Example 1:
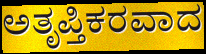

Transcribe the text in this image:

ಅತೃಪ್ತಿಕರವಾದ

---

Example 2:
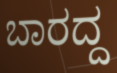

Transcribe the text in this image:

ಬಾರದ್ದ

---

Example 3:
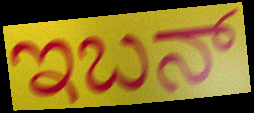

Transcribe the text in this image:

ಇಬನ್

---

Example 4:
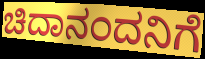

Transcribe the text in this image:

ಚಿದಾನಂದನಿಗೆ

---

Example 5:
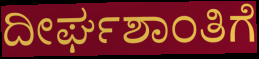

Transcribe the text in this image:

ದೀರ್ಘಶಾಂತಿಗೆ